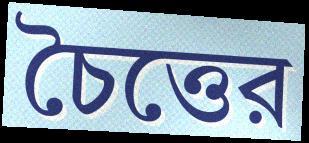
চৈত্তের